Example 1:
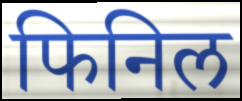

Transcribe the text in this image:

फिनिल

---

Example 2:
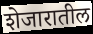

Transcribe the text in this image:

शेजारातील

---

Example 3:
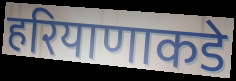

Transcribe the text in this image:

हरियाणाकडे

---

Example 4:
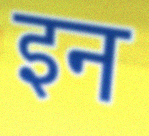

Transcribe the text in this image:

इन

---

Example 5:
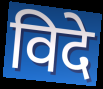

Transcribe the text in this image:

विदे